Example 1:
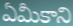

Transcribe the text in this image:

ఏమీకాని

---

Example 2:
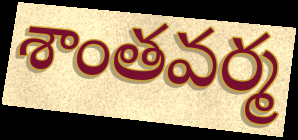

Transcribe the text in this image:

శాంతవర్మ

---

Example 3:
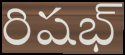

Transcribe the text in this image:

రిషభ్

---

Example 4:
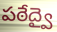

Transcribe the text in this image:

పఠేద్వై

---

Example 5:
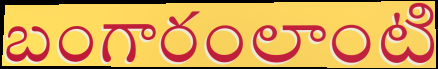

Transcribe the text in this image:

బంగారంలాంటి